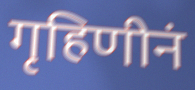
गृहिणीनं